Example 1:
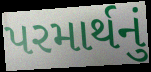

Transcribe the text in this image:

પરમાર્થનું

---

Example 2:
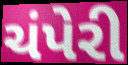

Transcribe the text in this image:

ચંપેરી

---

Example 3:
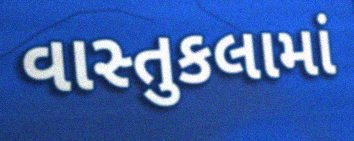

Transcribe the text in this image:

વાસ્તુકલામાં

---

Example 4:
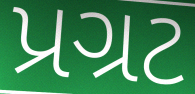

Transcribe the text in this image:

પ્રગ્રટ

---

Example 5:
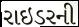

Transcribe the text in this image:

રાઇડરની